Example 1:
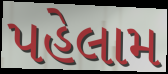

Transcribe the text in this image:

પહેલામ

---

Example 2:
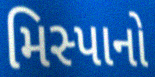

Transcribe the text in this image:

મિસ્પાનો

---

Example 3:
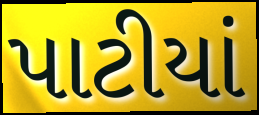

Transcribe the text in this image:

પાટીયાં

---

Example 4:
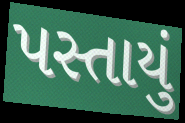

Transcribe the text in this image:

પસ્તાયું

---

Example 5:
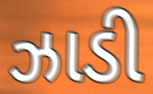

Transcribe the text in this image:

ઝાડી